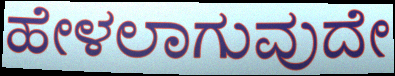
ಹೇಳಲಾಗುವುದೇ